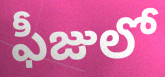
ఫీజులో